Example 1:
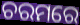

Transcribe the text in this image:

ଚରମରେ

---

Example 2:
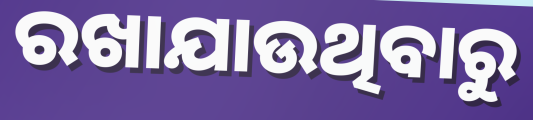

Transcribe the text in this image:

ରଖାଯାଉଥିବାରୁ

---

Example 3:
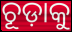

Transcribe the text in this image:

ଚୂଡ଼ାକୁ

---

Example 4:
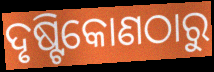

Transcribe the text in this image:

ଦୃଷ୍ଟିକୋଣଠାରୁ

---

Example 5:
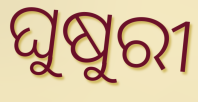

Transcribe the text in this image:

ଘୁଷୁରୀ